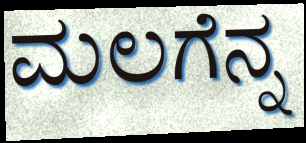
ಮಲಗೆನ್ನ